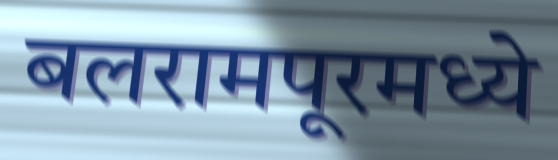
बलरामपूरमध्ये